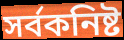
সর্বকনিষ্ট